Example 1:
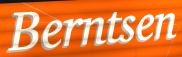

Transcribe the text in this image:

Berntsen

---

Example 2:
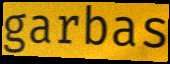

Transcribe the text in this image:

garbas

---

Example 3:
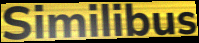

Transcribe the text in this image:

Similibus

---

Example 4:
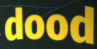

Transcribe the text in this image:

dood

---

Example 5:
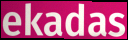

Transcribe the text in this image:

ekadas